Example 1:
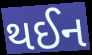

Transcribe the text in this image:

થઈન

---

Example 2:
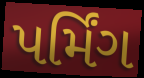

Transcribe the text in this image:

પર્મિંગ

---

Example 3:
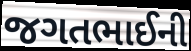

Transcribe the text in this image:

જગતભાઈની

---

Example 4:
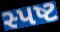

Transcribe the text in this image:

સ્પષ્ટ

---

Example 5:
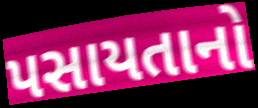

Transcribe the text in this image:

પસાયતાનો